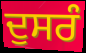
ਦੁਸਰੰ